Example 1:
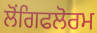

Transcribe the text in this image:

ਲੋਂਗਿਫਲੋਰਮ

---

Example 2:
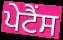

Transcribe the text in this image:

ਪੇਟੈਂਸ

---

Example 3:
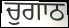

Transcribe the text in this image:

ਚੁਗਾਠ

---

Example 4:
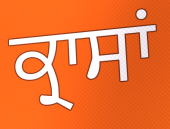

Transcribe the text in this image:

ਕ੍ਰਾਸਾਂ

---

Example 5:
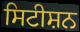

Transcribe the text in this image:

ਸਿਟੀਸ਼ਨ